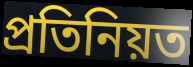
প্রতিনিয়ত